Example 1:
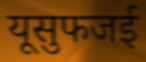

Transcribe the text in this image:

यूसुफजई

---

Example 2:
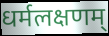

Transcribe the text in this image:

धर्मलक्षणम्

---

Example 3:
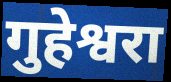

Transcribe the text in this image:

गुहेश्वरा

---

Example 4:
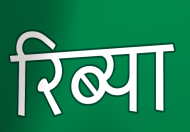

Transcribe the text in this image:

रिब्या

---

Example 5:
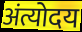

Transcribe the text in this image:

अंत्योदय